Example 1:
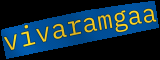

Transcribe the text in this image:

vivaramgaa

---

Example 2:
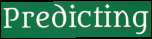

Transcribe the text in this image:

Predicting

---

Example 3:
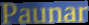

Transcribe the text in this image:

Paunar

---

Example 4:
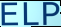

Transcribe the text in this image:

ELP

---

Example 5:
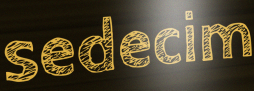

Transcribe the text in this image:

sedecim